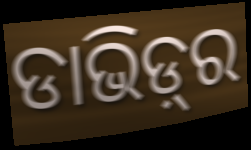
ଡାଭିଡ଼୍‍ର